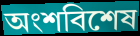
অংশবিশেষ